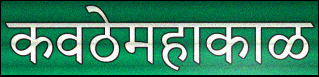
कवठेमहाकाळ